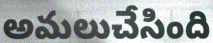
అమలుచేసింది